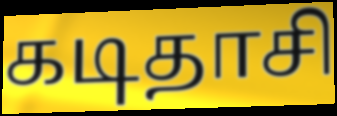
கடிதாசி